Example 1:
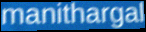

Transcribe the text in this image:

manithargal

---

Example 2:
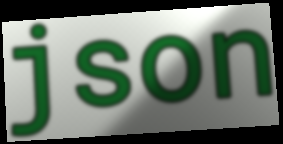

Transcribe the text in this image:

json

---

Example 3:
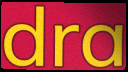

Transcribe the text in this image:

dra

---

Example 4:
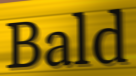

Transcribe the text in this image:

Bald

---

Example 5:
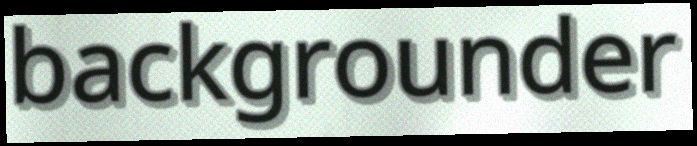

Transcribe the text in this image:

backgrounder